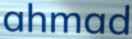
ahmad